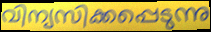
വിന്യസിക്കപ്പെടുന്നു